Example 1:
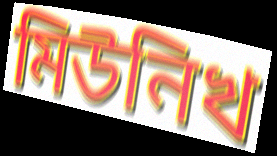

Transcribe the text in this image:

মিউনিখ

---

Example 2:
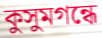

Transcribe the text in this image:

কুসুমগন্ধে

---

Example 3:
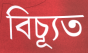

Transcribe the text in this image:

বিচ্যূত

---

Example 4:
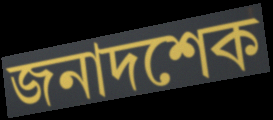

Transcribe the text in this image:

জনাদশেক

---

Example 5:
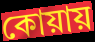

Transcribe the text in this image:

কোয়ায়